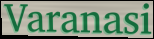
Varanasi